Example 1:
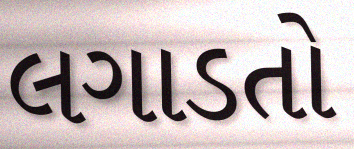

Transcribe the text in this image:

લગાડતો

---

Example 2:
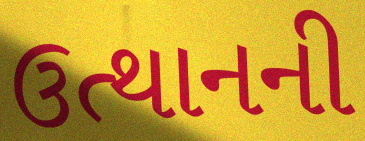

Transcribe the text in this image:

ઉત્થાનની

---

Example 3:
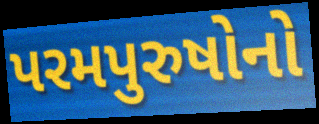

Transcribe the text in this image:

પરમપુરુષોનો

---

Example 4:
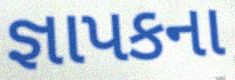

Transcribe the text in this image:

જ્ઞાપકના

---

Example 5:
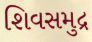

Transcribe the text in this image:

શિવસમુદ્ર